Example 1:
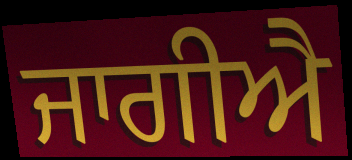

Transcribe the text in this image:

ਜਾਗੀਐ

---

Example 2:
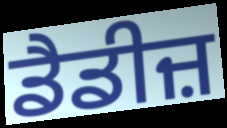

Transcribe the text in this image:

ਡੈਡੀਜ਼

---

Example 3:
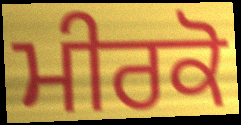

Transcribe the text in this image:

ਮੀਰਕੋ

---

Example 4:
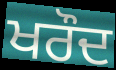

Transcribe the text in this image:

ਖਰੌਦ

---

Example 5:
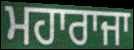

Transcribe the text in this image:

ਮਹਾਰਾਜਾ